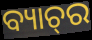
ବ୍ୟାଚ୍‌ର